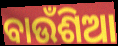
ବାଉଁଶିଆ